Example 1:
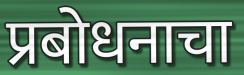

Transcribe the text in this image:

प्रबोधनाचा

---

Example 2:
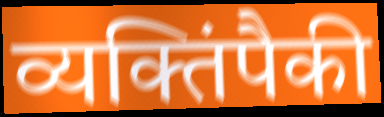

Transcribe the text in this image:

व्यक्तिंपैकी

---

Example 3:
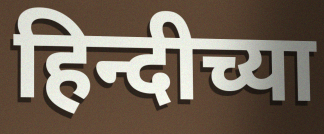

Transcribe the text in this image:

हिन्दीच्या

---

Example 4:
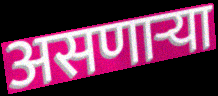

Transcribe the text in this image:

असणार्‍या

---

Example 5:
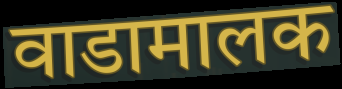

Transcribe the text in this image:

वाडामालक